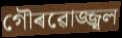
গৌৰৱোজ্জ্বল